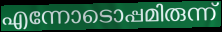
എന്നോടൊപ്പമിരുന്ന്